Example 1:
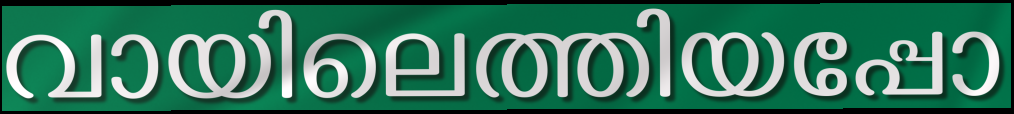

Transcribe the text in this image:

വായിലെത്തിയപ്പോ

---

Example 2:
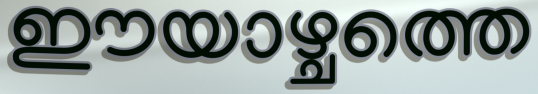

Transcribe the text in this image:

ഈയാഴ്ചത്തെ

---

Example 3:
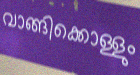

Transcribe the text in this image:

വാങ്ങിക്കൊള്ളും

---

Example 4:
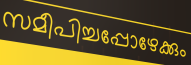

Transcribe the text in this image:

സമീപിച്ചപ്പോഴേക്കും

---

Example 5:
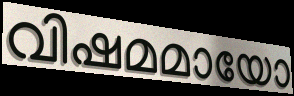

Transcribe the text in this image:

വിഷമമായോ